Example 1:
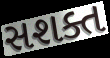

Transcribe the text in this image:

સશક્ત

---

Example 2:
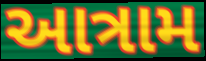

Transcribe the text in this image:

આત્રામ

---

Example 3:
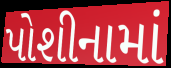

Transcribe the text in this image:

પોશીનામાં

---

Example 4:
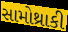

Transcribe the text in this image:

સામોથ્રાકી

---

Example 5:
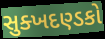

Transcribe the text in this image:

સુક્ખદણ્ડકો